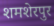
शमशेरपुर